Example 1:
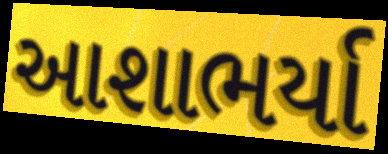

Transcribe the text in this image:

આશાભર્યા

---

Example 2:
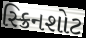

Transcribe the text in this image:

સ્ક્રિનશોટ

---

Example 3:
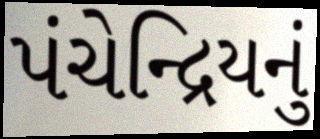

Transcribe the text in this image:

પંચેન્દ્રિયનું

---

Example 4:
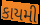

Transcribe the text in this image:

કાયમી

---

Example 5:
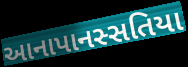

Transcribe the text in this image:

આનાપાનસ્સતિયા